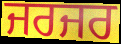
ਜਰਜਰ